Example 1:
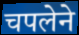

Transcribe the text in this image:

चपलेने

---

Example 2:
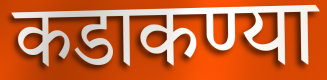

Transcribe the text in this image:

कडाकण्या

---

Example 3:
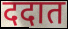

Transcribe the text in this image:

ददात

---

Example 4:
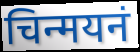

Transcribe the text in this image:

चिन्मयनं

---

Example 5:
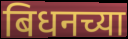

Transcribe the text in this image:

बिधनच्या